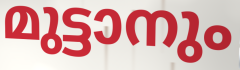
മുട്ടാനും